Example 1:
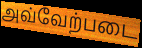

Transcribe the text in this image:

அவ்வேற்படை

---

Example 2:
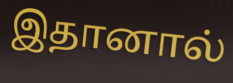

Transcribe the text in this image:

இதானால்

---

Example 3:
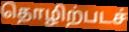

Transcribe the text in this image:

தொழிற்படச்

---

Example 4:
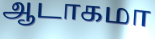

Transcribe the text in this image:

ஆடாகமா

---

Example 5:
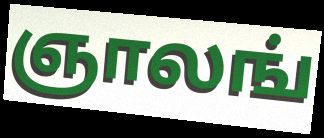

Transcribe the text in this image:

ஞாலங்